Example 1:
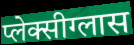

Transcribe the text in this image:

प्लेक्सीग्लास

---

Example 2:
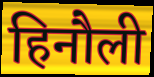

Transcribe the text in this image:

हिनौली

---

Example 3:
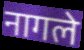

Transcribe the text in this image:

नागले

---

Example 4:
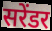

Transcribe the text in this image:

सरेंडर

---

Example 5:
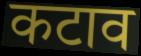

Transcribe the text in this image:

कटाव